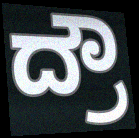
ದ್ರೌ